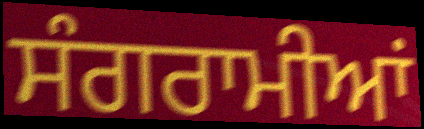
ਸੰਗਰਾਮੀਆਂ